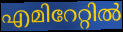
എമിറേറ്റിൽ